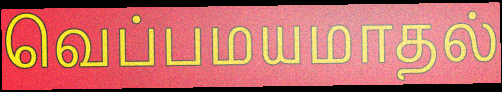
வெப்பமயமாதல்